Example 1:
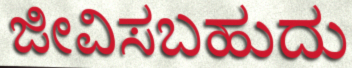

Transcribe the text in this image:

ಜೀವಿಸಬಹುದು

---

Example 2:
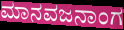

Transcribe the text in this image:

ಮಾನವಜನಾಂಗ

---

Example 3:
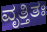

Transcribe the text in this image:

ವೃತ್ತಿತಃ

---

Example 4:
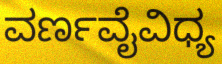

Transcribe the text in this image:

ವರ್ಣವೈವಿಧ್ಯ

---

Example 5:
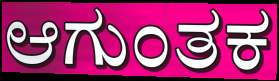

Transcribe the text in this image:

ಆಗುಂತಕ